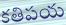
కతిపయ